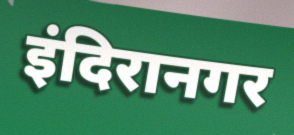
इंदिरानगर